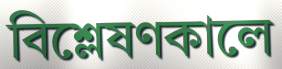
বিশ্লেষণকালে